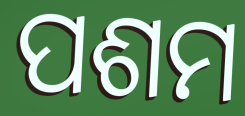
ପଶମ